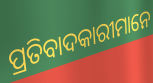
ପ୍ରତିବାଦକାରୀମାନେ